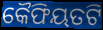
କୈଫିୟତଟି